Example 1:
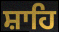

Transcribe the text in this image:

ਸ਼ਾਹਿ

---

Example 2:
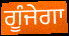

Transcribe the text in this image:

ਗੂੰਜੇਗਾ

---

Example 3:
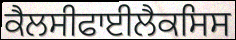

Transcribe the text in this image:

ਕੈਲਸੀਫਾਈਲੈਕਸਿਸ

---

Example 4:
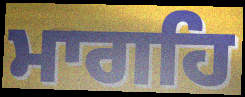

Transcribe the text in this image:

ਮਾਗਹਿ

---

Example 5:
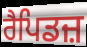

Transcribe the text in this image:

ਰੈਪਿਡਜ਼